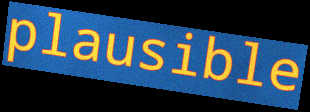
plausible